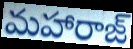
మహారాజ్